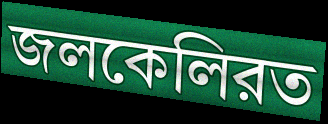
জলকেলিরত